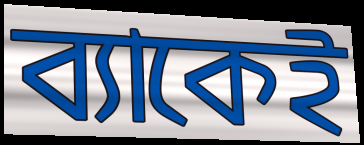
ব্যাকেই